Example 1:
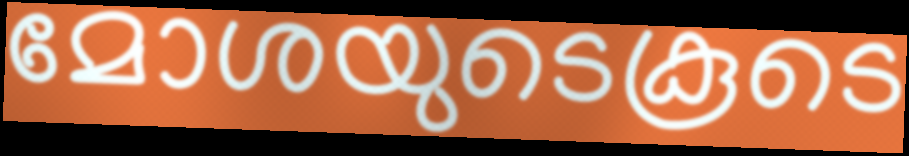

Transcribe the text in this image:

മോശയുടെകൂടെ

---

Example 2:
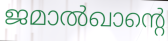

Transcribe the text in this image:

ജമാൽഖാന്റെ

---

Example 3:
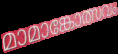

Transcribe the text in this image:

മാമാങ്കോത്സവം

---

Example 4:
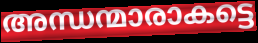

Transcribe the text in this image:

അന്ധന്മാരാകട്ടെ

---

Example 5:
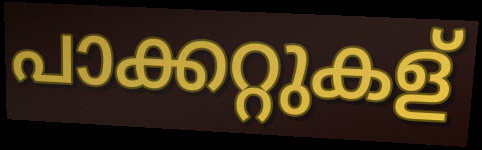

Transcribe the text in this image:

പാക്കറ്റുകള്